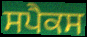
ਸਪੈਕਸ